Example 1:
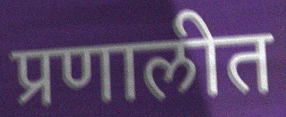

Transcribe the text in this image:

प्रणालीत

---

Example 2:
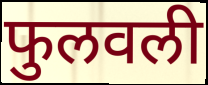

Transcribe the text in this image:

फुलवली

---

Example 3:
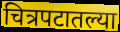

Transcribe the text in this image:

चित्रपटातल्या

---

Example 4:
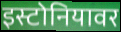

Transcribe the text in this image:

इस्टोनियावर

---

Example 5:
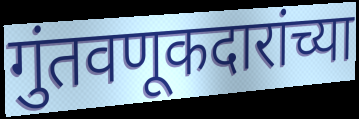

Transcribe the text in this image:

गुंतवणूकदारांच्या